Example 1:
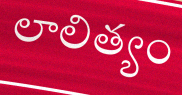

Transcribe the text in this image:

లాలిత్యం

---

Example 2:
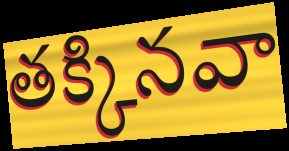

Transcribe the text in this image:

తక్కినవా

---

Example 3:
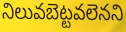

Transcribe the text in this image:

నిలువబెట్టవలెనని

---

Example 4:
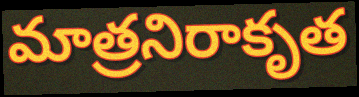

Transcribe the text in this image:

మాత్రనిరాకృత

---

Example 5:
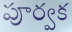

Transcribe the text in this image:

పూర్వక